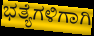
ಭತ್ಯೆಗಳಿಗಾಗಿ